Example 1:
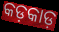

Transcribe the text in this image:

କଡ଼କାଡ଼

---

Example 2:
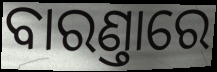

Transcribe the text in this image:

ବାରଣ୍ତାରେ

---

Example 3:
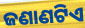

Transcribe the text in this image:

ଜଣାଣଟିଏ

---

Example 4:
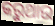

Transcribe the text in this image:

କରୁଥାଉ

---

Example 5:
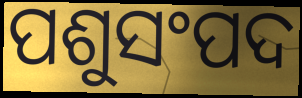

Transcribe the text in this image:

ପଶୁସଂପଦ